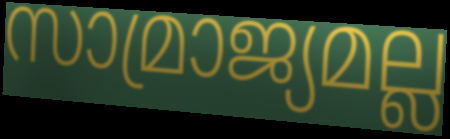
സാമ്രാജ്യമല്ല